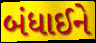
બંધાઈને